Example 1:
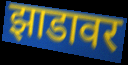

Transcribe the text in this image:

झाडावर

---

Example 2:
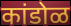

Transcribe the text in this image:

कांडोळ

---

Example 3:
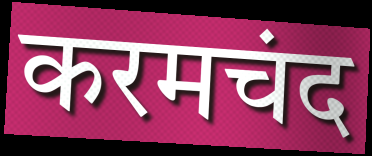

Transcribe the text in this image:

करमचंद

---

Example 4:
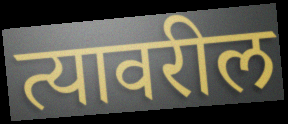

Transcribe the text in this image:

त्यावरील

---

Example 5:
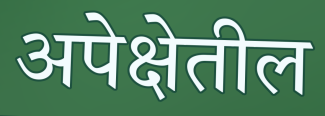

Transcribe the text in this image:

अपेक्षेतील